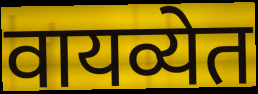
वायव्येत